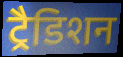
ट्रैडिशन